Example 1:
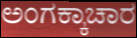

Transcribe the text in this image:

ಅಂಗಕ್ಕಾಚಾರ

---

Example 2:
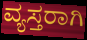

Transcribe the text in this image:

ವ್ಯಸ್ತರಾಗಿ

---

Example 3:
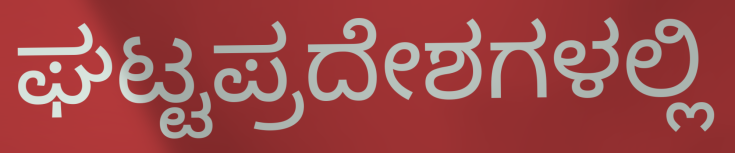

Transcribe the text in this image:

ಘಟ್ಟಪ್ರದೇಶಗಳಲ್ಲಿ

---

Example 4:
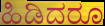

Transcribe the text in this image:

ಹಿಡಿದರೂ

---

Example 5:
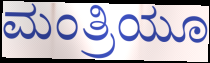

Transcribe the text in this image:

ಮಂತ್ರಿಯೂ